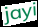
jayi